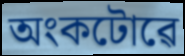
অংকটোৱে